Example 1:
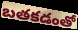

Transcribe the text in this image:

బతకడంతో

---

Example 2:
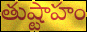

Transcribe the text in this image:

తుష్టాహం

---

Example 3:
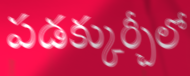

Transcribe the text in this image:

పడక్కుర్చీలో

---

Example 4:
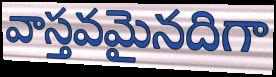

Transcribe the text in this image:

వాస్తవమైనదిగా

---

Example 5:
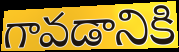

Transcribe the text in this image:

గావడానికి